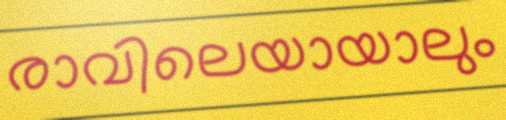
രാവിലെയായാലും